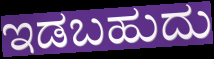
ಇಡಬಹುದು